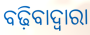
ବଢ଼ିବାଦ୍ୱାରା